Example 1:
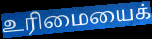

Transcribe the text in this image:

உரிமையைக்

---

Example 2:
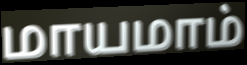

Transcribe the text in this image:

மாயமாம்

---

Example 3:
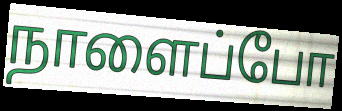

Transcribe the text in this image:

நாளைப்போ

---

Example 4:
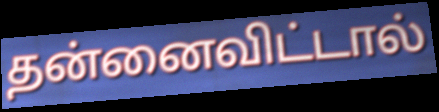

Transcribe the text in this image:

தன்னைவிட்டால்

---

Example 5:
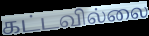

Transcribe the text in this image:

கட்டவில்லை